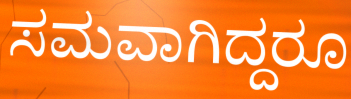
ಸಮವಾಗಿದ್ದರೂ